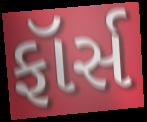
ફૉર્સ